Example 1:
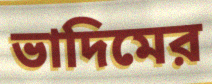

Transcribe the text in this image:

ভাদিমের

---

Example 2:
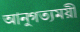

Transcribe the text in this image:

আনুগত্যময়ী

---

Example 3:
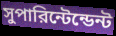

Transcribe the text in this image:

সুপারিন্টেন্ডেন্ট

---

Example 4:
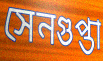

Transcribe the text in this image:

সেনগুপ্তা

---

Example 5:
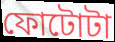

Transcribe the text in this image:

ফোটোটা